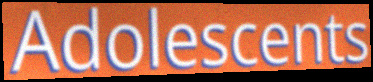
Adolescents